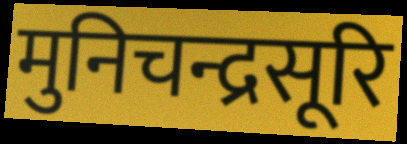
मुनिचन्द्रसूरि